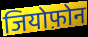
जियोफ़ोन